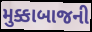
મુક્કાબાજની